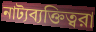
নাট্যব্যক্তিত্বরা